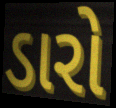
ડારો